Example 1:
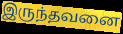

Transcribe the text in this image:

இருந்தவனை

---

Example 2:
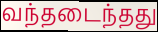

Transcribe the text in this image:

வந்தடைந்தது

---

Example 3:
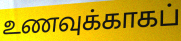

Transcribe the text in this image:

உணவுக்காகப்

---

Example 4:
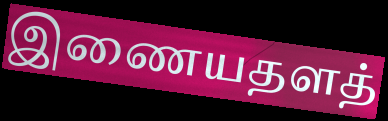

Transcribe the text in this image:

இணையதளத்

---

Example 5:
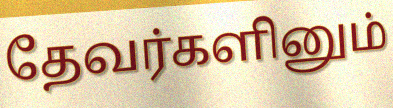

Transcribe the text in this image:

தேவர்களினும்